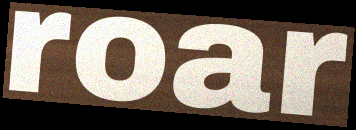
roar